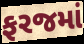
ફરજમાં